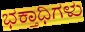
ಭಕ್ತಾಧಿಗಳು